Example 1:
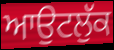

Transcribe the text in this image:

ਆਉਟਲੁੱਕ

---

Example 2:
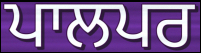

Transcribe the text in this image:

ਪਾਲਪਰ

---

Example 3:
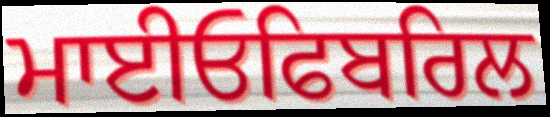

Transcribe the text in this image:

ਮਾਈਓਫਿਬਰਿਲ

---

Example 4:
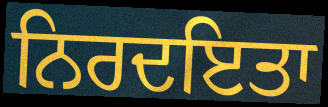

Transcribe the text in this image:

ਨਿਰਦਇਤਾ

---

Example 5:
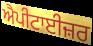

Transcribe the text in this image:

ਐਪੀਟਾਈਜ਼ਰ